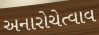
અનારોચેત્વાવ